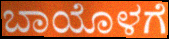
ಬಾಯೊಳಗೆ